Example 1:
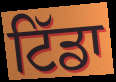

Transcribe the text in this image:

ਟਿੱਡਾ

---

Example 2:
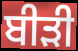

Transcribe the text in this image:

ਬੀਡ਼ੀ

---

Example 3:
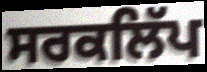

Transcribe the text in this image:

ਸਰਕਲਿੱਪ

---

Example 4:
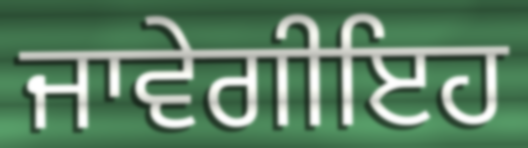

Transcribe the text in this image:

ਜਾਵੇਗੀਇਹ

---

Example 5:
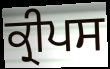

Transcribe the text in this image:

ਕ੍ਰੀਪਸ